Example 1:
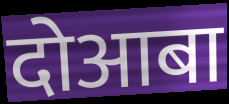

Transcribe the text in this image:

दोआबा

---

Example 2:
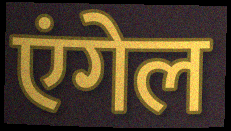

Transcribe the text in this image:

एंगेल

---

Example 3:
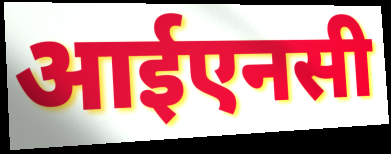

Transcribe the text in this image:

आईएनसी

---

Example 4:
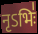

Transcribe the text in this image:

नृऽभिः॑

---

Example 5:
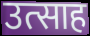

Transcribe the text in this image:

उत्‍साह